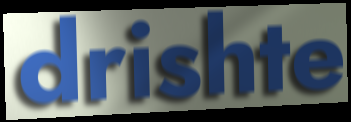
drishte